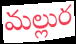
మల్లుర